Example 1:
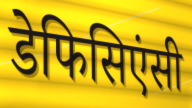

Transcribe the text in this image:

डेफिसिएंसी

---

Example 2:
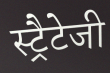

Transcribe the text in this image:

स्ट्रैटेजी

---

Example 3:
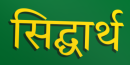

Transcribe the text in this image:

सिद्घार्थ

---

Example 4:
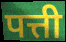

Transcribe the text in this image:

पत्ती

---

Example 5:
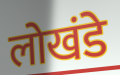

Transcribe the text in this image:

लोखंडे